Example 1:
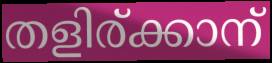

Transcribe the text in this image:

തളിര്ക്കാന്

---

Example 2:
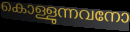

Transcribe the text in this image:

കൊള്ളുന്നവനോ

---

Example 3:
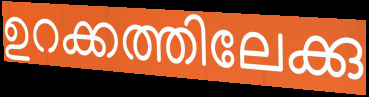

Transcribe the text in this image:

ഉറക്കത്തിലേക്കു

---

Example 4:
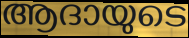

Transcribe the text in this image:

ആദായുടെ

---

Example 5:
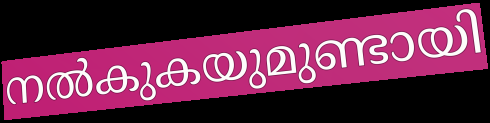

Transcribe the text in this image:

നൽകുകയുമുണ്ടായി